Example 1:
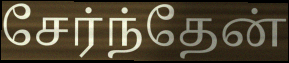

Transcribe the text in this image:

சேர்ந்தேன்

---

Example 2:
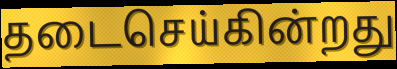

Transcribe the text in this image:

தடைசெய்கின்றது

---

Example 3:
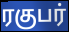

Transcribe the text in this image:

ரகுபர்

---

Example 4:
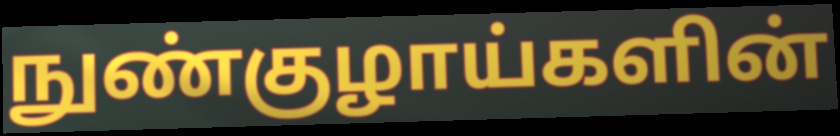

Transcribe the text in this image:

நுண்குழாய்களின்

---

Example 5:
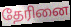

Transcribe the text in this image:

தேரினை